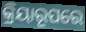
କ୍ରିୟାରୂପରେ